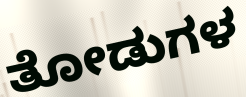
ತೋಡುಗಳ